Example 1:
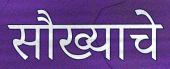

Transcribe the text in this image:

सौख्याचे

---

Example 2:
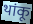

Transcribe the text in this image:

थांकू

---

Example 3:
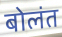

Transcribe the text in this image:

बोलंत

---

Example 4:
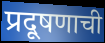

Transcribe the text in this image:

प्रदूषणाची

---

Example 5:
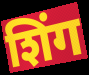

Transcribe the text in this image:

शिंग